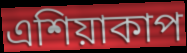
এশিয়াকাপ